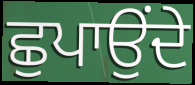
ਛੁਪਾਉਂਦੇ